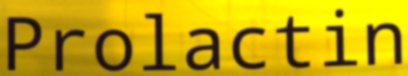
Prolactin